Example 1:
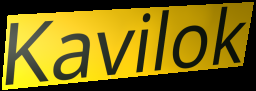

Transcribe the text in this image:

Kavilok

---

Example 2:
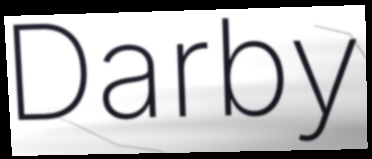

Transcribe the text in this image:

Darby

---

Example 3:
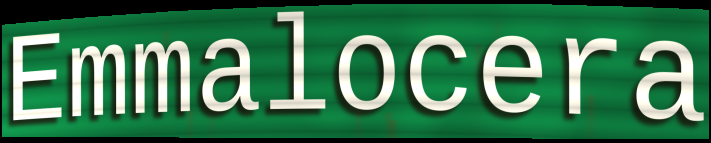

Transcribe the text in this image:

Emmalocera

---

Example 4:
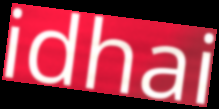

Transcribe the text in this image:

idhai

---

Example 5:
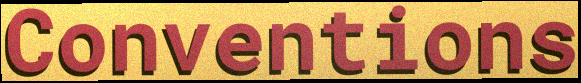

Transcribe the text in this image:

Conventions